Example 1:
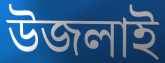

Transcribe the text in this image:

উজলাই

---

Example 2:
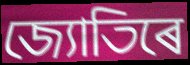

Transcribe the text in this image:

জ্যোতিৰে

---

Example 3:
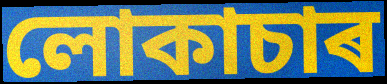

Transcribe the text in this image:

লোকাচাৰ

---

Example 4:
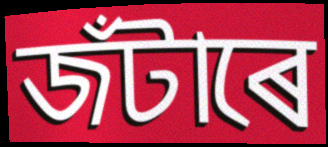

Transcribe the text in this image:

জঁটাৰে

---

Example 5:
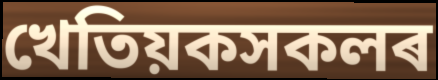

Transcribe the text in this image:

খেতিয়কসকলৰ